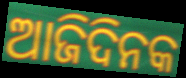
ଆଜିଦିନକ